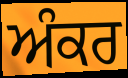
ਅੰਕਰ